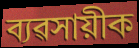
ব্যৱসায়ীক